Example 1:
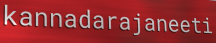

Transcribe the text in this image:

kannadarajaneeti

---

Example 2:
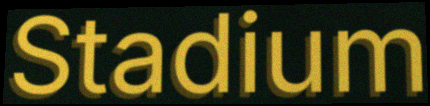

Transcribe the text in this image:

Stadium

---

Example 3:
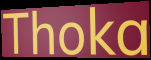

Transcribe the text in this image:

Thoka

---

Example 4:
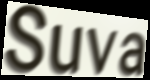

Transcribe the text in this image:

Suva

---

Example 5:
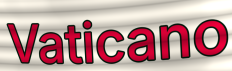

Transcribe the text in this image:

Vaticano